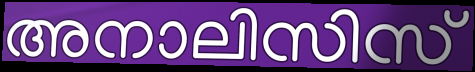
അനാലിസിസ്